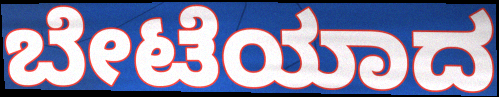
ಬೇಟೆಯಾದ